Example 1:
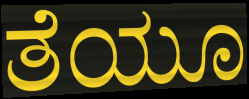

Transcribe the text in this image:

ತೆಯೂ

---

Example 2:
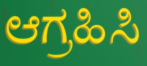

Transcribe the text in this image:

ಆಗ್ರಹಿಸಿ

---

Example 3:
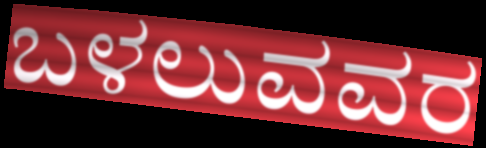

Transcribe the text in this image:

ಬಳಲುವವರ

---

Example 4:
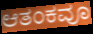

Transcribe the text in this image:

ಆತಂಕವೂ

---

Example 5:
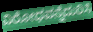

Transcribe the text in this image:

ವಿರೋಧವನ್ನೆದುರಿಸಿ